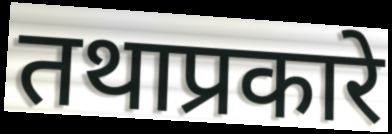
तथाप्रकारे